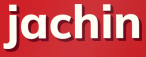
jachin